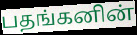
பதங்கனின்